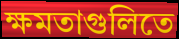
ক্ষমতাগুলিতে